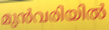
മുൻവരിയിൽ